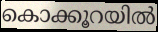
കൊക്കൂറയിൽ